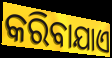
କରିବାଯାଏ